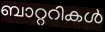
ബാറ്ററികൾ